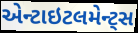
એન્ટાઇટલમેન્ટ્સ